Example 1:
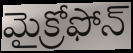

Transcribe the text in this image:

మైక్రోఫోన్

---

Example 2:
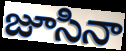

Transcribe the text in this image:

జూసినా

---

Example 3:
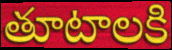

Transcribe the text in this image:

తూటాలకి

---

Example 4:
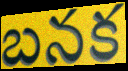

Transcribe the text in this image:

బనక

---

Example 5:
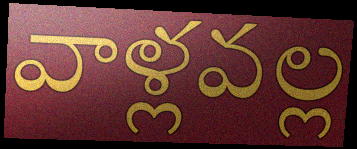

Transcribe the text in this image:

వాళ్లవల్ల